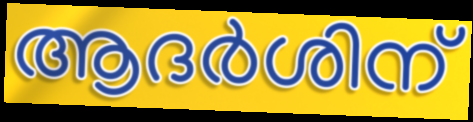
ആദർശിന്